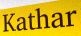
Kathar